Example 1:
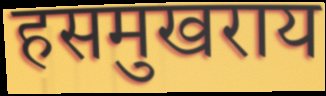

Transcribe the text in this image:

हसमुखराय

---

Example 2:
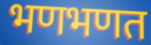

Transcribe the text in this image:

भणभणत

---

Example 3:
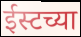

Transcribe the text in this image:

ईस्टच्या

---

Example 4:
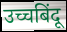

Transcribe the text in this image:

उच्चबिंदू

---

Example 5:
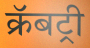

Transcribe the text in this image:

क्रॅबट्री